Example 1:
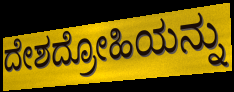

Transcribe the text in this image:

ದೇಶದ್ರೋಹಿಯನ್ನು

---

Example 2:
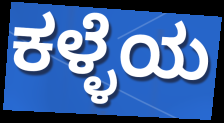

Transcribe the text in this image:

ಕಳ್ಳೆಯ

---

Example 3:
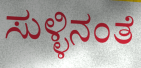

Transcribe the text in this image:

ಸುಳ್ಳಿನಂತೆ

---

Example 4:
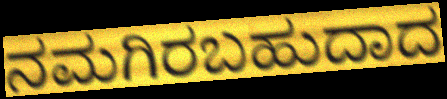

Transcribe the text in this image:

ನಮಗಿರಬಹುದಾದ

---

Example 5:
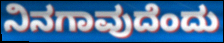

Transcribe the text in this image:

ನಿನಗಾವುದೆಂದು